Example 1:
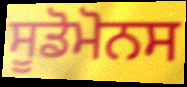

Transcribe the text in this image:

ਸੂਡੋਮੋਨਸ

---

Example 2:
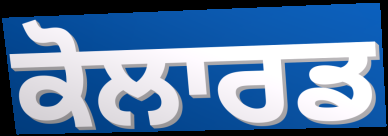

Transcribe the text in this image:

ਕੋਲਾਰਡ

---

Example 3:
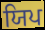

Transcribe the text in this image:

ਯਿਪ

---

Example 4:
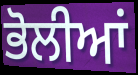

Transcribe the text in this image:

ਭੋਲੀਆਂ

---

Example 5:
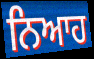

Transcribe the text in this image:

ਨਿਆਹ